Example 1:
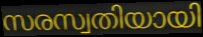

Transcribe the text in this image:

സരസ്വതിയായി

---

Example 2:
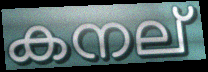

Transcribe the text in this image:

കനല്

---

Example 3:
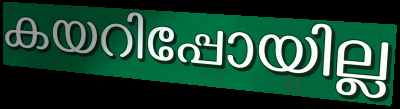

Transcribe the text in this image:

കയറിപ്പോയില്ല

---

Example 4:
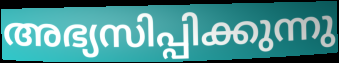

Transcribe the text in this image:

അഭ്യസിപ്പിക്കുന്നു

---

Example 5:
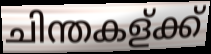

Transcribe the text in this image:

ചിന്തകള്ക്ക്